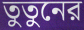
তুতুনের